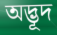
অদ্ভূদ